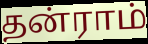
தன்ராம்